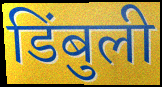
डिंबुली